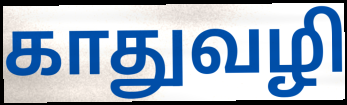
காதுவழி